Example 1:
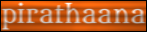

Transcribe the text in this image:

pirathaana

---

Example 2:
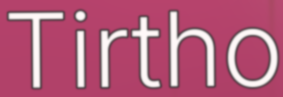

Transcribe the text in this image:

Tirtho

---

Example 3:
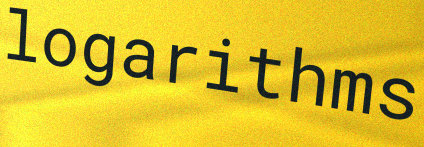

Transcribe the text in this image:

logarithms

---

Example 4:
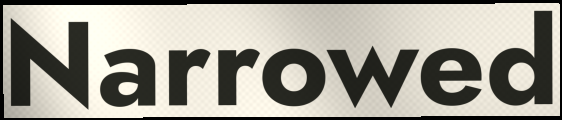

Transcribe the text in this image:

Narrowed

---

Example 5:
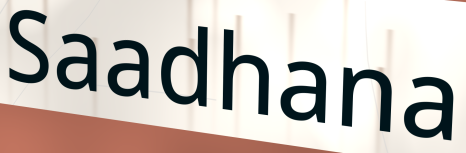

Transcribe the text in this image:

Saadhana